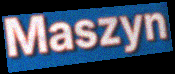
Maszyn